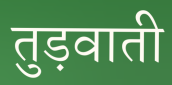
तुड़वाती